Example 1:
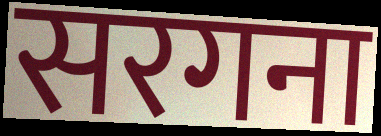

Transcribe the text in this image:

सरगना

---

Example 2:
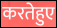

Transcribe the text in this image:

करतेहुए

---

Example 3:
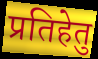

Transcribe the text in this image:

प्रतिहेतु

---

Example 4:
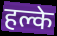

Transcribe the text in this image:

हल्के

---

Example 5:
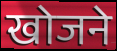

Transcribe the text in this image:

खोजने